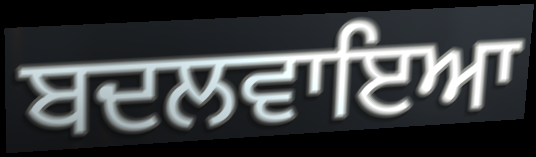
ਬਦਲਵਾਇਆ